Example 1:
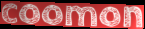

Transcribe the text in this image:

coomon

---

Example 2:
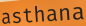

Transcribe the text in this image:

asthana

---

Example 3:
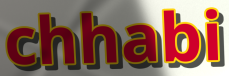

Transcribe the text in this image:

chhabi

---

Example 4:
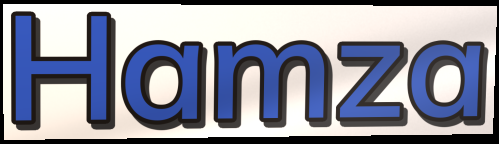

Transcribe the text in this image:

Hamza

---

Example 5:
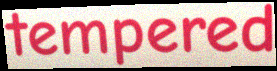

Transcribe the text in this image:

tempered